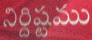
నిర్దిష్టము